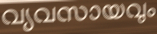
വ്യവസായവും